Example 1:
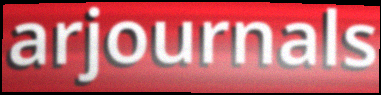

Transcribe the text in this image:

arjournals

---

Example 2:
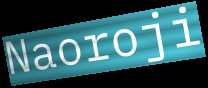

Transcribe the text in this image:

Naoroji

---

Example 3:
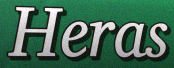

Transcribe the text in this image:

Heras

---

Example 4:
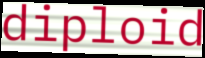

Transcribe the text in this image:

diploid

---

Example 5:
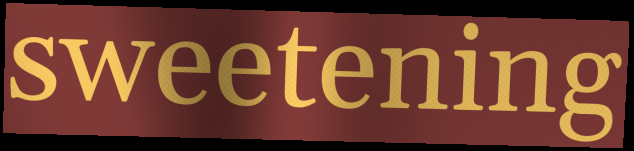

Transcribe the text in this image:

sweetening